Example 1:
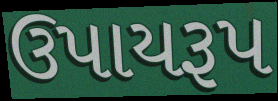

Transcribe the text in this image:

ઉપાયરૂપ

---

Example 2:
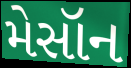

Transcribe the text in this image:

મેસૉન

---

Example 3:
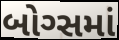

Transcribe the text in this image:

બોગ્સમાં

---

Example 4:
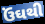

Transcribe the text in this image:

ઉંઘથી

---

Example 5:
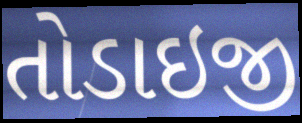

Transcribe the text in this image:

તોડાઇજી